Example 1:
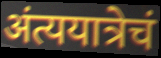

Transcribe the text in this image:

अंत्ययात्रेचं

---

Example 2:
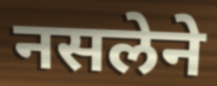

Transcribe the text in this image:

नसलेने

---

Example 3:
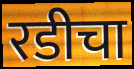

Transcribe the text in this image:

रडीचा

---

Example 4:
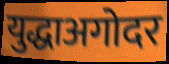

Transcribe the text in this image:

युद्धाअगोदर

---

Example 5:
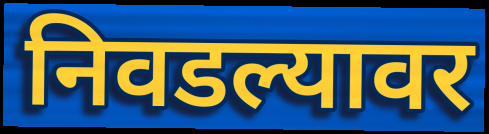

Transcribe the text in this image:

निवडल्यावर